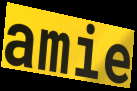
amie